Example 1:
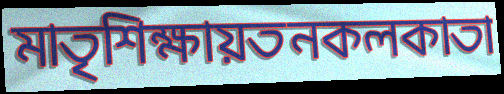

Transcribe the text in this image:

মাতৃশিক্ষায়তনকলকাতা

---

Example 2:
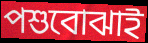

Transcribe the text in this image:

পশুবোঝাই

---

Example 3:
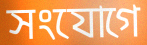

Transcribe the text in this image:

সংযোগে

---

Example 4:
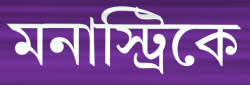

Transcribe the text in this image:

মনাস্ট্রিকে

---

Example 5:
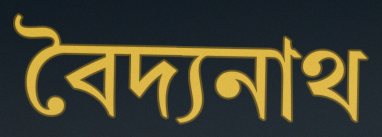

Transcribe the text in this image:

বৈদ্যনাথ